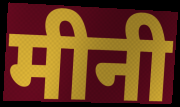
मीनी